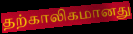
தற்காலிகமானது